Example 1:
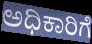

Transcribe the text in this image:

ಅಧಿಕಾರಿಗೆ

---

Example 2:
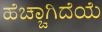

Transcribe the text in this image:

ಹೆಚ್ಚಾಗಿದೆಯೆ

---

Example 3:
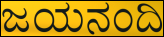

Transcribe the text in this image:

ಜಯನಂದಿ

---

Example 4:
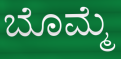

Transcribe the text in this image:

ಬೊಮ್ಮೆ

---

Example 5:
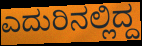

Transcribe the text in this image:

ಎದುರಿನಲ್ಲಿದ್ದ